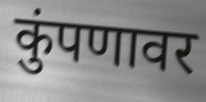
कुंपणावर